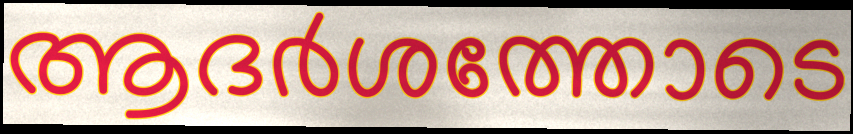
ആദർശത്തോടെ